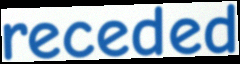
receded